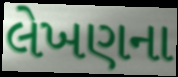
લેખણના